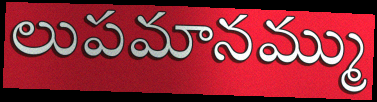
లుపమానమ్ము